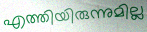
എത്തിയിരുന്നുമില്ല